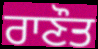
ਰਾਣੌਤ